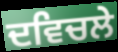
ਦਵਿਚਲੇ